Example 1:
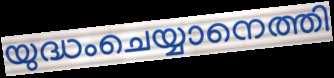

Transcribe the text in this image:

യുദ്ധംചെയ്യാനെത്തി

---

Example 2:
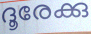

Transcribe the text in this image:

ദൂരേക്കു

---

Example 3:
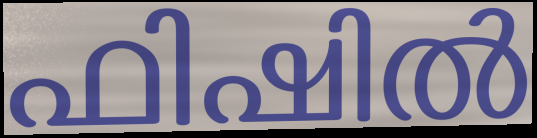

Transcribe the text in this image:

ഫിഷിൽ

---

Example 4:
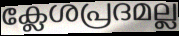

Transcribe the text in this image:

ക്ലേശപ്രദമല്ല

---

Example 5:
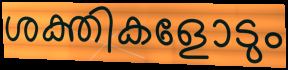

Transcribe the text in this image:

ശക്തികളോടും